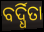
ବର୍ଦ୍ଧିତା